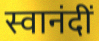
स्वानंदीं